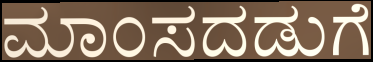
ಮಾಂಸದಡುಗೆ